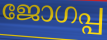
ജോഗപ്പ